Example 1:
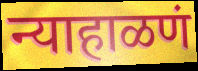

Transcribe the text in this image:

न्याहाळणं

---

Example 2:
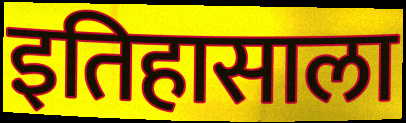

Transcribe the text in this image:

इतिहासाला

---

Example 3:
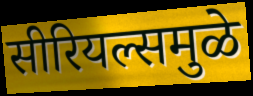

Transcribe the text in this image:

सीरियल्समुळे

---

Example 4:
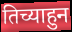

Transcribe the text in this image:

तिच्याहुन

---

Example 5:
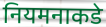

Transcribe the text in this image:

नियमनाकडे